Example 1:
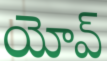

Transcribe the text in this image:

యోవ్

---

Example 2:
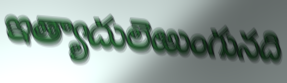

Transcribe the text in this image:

ఇత్యాదులెఱుంగునది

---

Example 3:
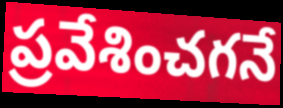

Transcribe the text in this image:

ప్రవేశించగనే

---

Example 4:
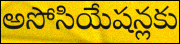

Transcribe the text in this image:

అసోసియేషన్లకు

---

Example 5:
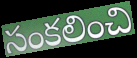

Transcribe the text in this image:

సంకలించి